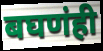
बघणंही